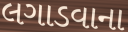
લગાડવાના